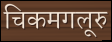
चिकमगलूरु